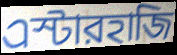
এস্টারহাজি